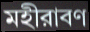
মহীরাবণ